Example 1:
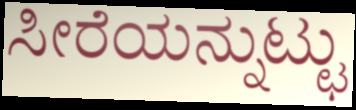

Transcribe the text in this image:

ಸೀರೆಯನ್ನುಟ್ಟು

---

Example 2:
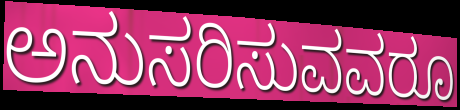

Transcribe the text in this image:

ಅನುಸರಿಸುವವರೂ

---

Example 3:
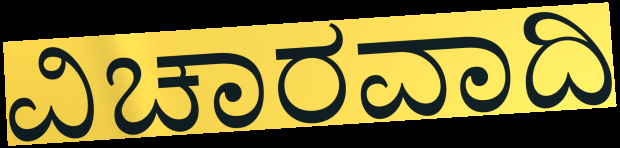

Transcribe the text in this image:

ವಿಚಾರವಾದಿ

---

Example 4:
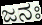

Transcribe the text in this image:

ಜನಃ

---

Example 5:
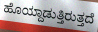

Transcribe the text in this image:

ಹೊಯ್ದಾಡುತ್ತಿರುತ್ತದೆ